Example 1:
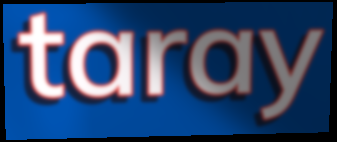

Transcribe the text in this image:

taray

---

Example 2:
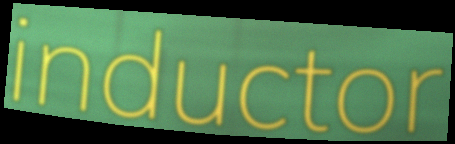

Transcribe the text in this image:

inductor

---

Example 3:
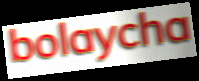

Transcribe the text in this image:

bolaycha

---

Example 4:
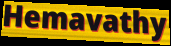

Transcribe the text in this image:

Hemavathy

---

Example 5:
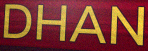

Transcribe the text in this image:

DHAN